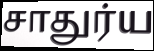
சாதுர்ய